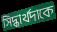
সিদ্ধার্থদাকে